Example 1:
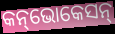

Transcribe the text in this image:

କନ୍‌ଭୋକେସନ୍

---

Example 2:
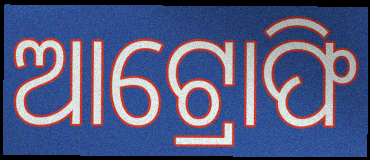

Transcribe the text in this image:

ଆଟ୍ରୋଫି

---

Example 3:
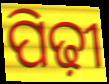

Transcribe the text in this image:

ପିଢ଼ୀ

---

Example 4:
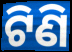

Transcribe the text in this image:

ଟିଣି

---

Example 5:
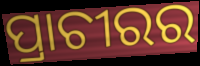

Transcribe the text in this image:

ପ୍ରାଚୀରର